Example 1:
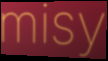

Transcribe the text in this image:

misy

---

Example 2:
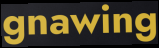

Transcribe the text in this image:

gnawing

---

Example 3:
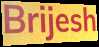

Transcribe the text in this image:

Brijesh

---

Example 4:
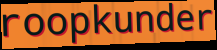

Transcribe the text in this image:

roopkunder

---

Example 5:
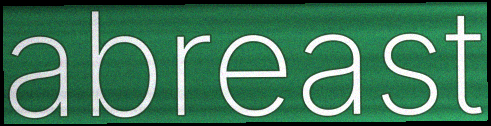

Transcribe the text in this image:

abreast